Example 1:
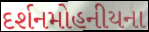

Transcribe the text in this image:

દર્શનમોહનીયના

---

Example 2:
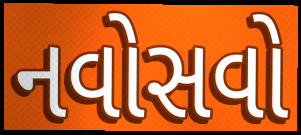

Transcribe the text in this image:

નવોસવો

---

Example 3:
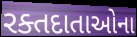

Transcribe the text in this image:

રક્તદાતાઓના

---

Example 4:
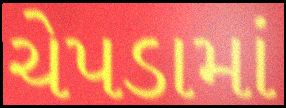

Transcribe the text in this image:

ચેપડામાં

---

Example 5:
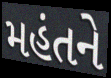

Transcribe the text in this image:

મહંતને